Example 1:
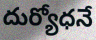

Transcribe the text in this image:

దుర్యోధనే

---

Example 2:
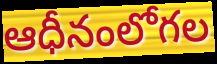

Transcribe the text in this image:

ఆధీనంలోగల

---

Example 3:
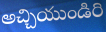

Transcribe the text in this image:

అచ్చియుండిరి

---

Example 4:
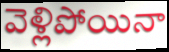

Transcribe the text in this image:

వెళ్లిపోయినా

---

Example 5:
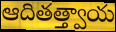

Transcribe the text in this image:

ఆదితత్త్వాయ